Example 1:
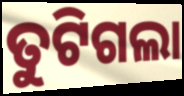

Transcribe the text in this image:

ତୁଟିଗଲା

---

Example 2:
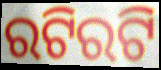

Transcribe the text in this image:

ରଟିରଟି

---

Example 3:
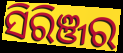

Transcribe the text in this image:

ସିରିଞ୍ଜର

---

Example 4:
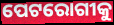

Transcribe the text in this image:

ପେଟରୋଗୀକୁ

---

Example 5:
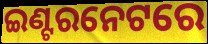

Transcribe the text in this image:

ଇଣ୍ଟରନେଟରେ